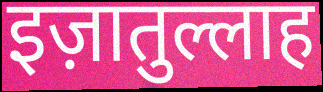
इज़ातुल्लाह